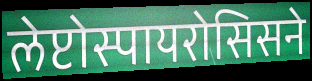
लेप्टोस्पायरोसिसने